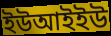
ইউআইইউ